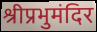
श्रीप्रभुमंदिर